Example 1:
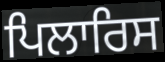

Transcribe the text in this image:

ਪਿਲਾਰਿਸ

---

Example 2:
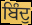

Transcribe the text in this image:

ਬਿੰਦੁ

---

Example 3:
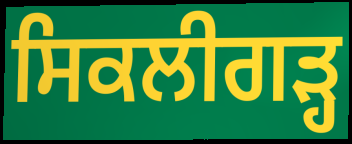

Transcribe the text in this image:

ਸਿਕਲੀਗੜ੍ਹ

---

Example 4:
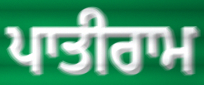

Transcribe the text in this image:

ਪਾਤੀਰਾਮ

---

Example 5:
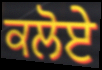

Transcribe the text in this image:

ਕਲੋਏ